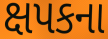
ક્ષપકના